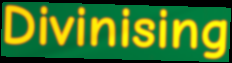
Divinising